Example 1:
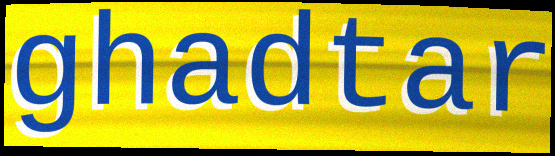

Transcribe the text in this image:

ghadtar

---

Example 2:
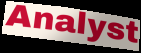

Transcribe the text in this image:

Analyst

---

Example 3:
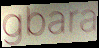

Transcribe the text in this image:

gbara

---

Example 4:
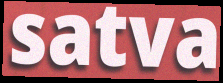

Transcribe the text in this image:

satva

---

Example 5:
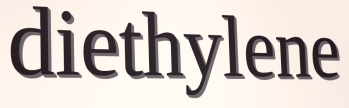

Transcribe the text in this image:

diethylene